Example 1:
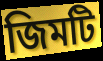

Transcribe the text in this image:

জিমটি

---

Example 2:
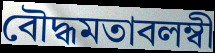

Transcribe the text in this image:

বৌদ্ধমতাবলম্বী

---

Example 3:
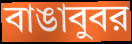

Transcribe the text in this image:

বাঙাবুবর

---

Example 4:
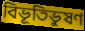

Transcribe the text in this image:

বিভূতিভুষণ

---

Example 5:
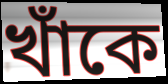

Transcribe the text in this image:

খাঁকে